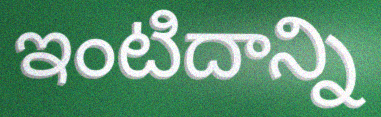
ఇంటిదాన్ని